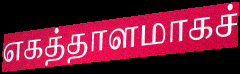
எகத்தாளமாகச்